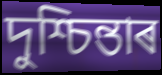
দুশ্চিন্তাৰ